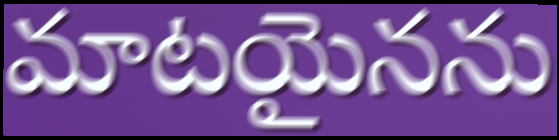
మాటయైనను